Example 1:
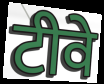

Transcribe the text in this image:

टीवे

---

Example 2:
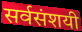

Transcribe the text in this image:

सर्वसंशयी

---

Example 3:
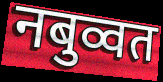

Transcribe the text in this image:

नबुव्वत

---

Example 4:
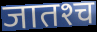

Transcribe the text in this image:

जातश्च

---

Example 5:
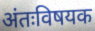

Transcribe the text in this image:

अंतःविषयक